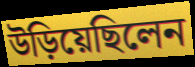
উড়িয়েছিলেন